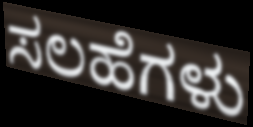
ಸಲಹೆಗಳು